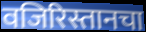
वजिरिस्तानचा